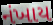
નંખાય